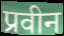
प्रवीन